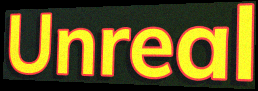
Unreal